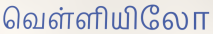
வெள்ளியிலோ